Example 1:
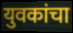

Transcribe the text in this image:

युवकांचा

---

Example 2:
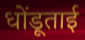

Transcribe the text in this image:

धोंडूताई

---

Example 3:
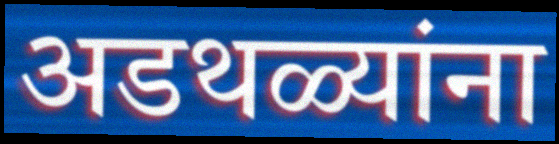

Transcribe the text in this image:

अडथळ्यांना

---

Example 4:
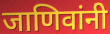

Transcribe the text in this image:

जाणिवांनी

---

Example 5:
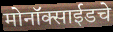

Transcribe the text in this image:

मोनॉक्साईडचे